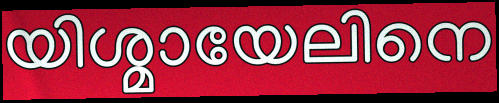
യിശ്മായേലിനെ